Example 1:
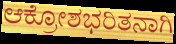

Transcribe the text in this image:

ಆಕ್ರೋಶಭರಿತನಾಗಿ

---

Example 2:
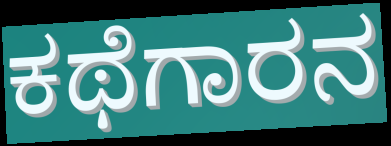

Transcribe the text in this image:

ಕಥೆಗಾರನ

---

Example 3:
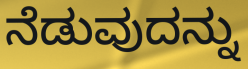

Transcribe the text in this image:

ನೆಡುವುದನ್ನು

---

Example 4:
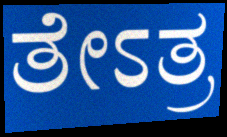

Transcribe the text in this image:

ತೇಽತ್ರ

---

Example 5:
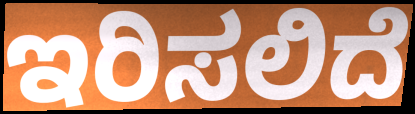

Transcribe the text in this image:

ಇರಿಸಲಿದೆ